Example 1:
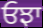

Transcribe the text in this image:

ਓਝਾ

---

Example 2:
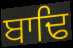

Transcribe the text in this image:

ਬਾਢਿ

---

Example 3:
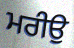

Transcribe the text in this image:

ਮਰੀਉ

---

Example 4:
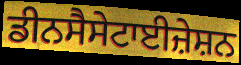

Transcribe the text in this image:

ਡੀਨਸੈਸੇਟਾਈਜ਼ੇਸ਼ਨ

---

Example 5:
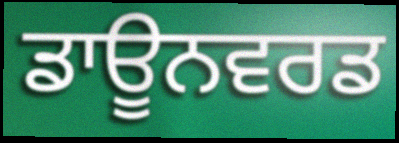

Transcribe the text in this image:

ਡਾਊਨਵਰਡ